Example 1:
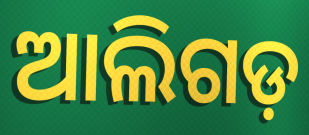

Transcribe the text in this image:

ଆଲିଗଡ଼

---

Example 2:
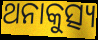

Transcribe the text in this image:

ଥନାକୁତ୍ସ୍ୟ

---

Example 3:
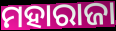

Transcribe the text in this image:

ମହାରାଜା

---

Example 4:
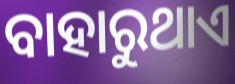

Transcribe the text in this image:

ବାହାରୁଥାଏ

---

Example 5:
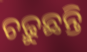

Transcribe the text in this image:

ଚଢ଼ୁଛନ୍ତି